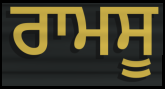
ਰਾਮਸੂ